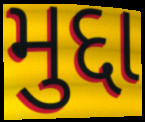
મુદ્દા